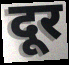
दूर